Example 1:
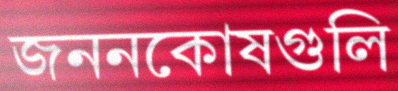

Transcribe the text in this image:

জননকোষগুলি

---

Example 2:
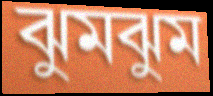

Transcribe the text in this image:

ঝুমঝুম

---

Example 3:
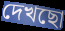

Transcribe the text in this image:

দেখছো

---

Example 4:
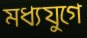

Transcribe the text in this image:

মধ্যযুগে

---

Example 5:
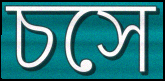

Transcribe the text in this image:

চসে